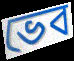
ভেব